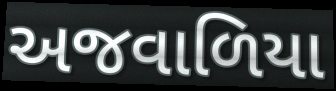
અજવાળિયા